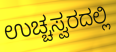
ಉಚ್ಚಸ್ವರದಲ್ಲಿ